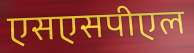
एसएसपीएल